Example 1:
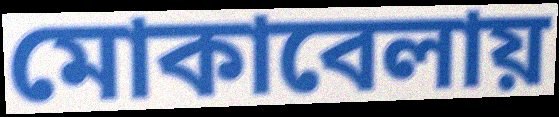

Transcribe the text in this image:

মোকাবেলায়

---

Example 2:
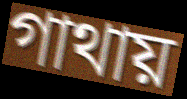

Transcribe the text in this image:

গাথায়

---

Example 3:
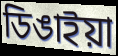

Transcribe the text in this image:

ডিঙাইয়া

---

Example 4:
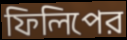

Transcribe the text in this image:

ফিলিপের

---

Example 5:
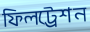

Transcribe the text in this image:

ফিলট্রেশন